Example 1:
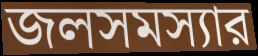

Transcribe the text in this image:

জলসমস্যার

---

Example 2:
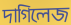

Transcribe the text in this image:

দাগিলেজ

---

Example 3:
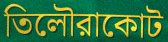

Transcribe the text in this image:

তিলৌরাকোট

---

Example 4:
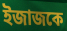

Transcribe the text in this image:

ইজাজকে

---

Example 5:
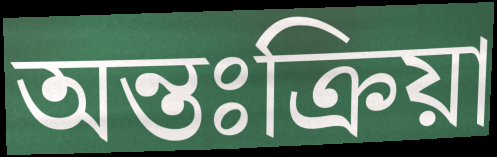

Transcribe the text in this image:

অন্তঃক্রিয়া